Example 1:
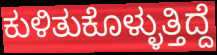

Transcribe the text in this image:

ಕುಳಿತುಕೊಳ್ಳುತ್ತಿದ್ದೆ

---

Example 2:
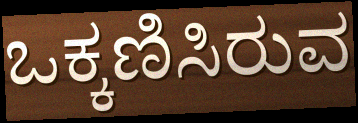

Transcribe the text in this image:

ಒಕ್ಕಣಿಸಿರುವ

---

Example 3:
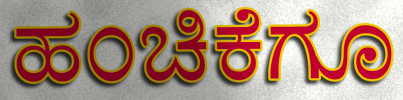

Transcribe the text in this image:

ಹಂಚಿಕೆಗೂ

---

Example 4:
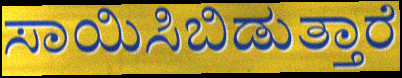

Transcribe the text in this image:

ಸಾಯಿಸಿಬಿಡುತ್ತಾರೆ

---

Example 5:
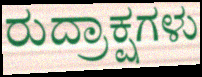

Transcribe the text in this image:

ರುದ್ರಾಕ್ಷಗಳು